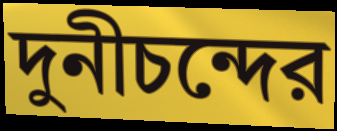
দুনীচন্দের